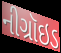
નીગ્રૉઇડ